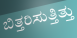
ಬಿತ್ತರಿಸುತ್ತಿತ್ತು